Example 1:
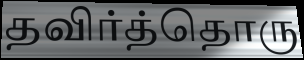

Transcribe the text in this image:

தவிர்த்தொரு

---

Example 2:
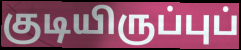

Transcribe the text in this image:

குடியிருப்புப்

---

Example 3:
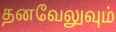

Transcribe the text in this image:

தனவேலுவும்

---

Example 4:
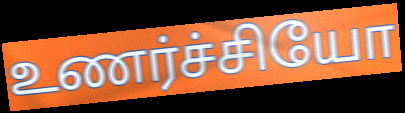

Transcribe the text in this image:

உணர்ச்சியோ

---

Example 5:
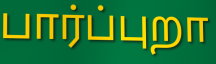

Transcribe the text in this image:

பார்ப்புறா